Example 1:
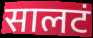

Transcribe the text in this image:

सालटं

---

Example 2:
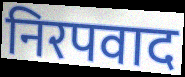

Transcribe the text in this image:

निरपवाद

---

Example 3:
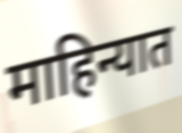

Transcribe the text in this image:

माहिन्यात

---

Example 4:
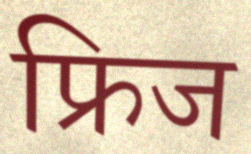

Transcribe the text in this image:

फ्रिज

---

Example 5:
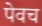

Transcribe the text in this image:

पेवच